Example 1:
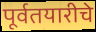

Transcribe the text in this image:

पूर्वतयारीचे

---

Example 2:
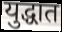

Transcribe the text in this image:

युद्धात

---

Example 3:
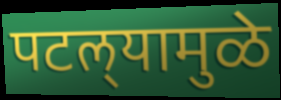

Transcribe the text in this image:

पटल्यामुळे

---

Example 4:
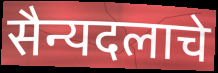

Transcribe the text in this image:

सैन्यदलाचे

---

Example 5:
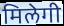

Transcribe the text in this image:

मिलेगी